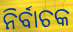
ନିର୍ବାଚକ